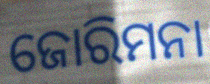
ଜୋରିମନା